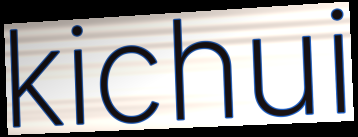
kichui